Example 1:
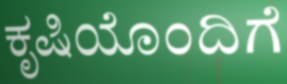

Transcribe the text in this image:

ಕೃಷಿಯೊಂದಿಗೆ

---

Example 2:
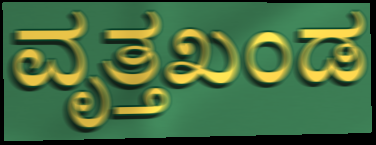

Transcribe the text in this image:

ವೃತ್ತಖಂಡ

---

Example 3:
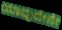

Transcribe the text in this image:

ಯಾವುದೇನೇ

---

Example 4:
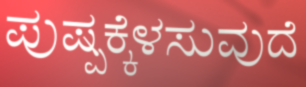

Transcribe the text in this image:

ಪುಷ್ಪಕ್ಕೆಳಸುವುದೆ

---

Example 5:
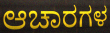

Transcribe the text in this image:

ಆಚಾರಗಳ